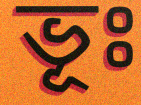
ভূঃ